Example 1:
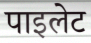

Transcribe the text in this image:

पाइलेट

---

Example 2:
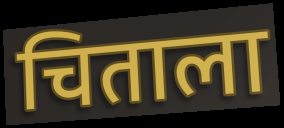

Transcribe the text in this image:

चिताला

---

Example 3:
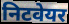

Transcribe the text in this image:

निटवेयर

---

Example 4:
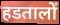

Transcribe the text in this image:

हडतालों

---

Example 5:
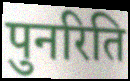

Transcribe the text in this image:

पुनरिति